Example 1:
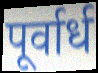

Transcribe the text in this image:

पूर्वार्ध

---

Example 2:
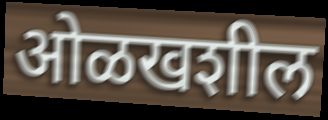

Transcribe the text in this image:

ओळखशील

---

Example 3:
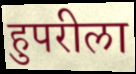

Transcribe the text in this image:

हुपरीला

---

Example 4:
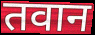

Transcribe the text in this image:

तवान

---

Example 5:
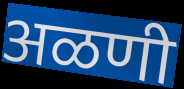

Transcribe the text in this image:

अळणी